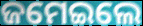
ଜମେଇଲେ